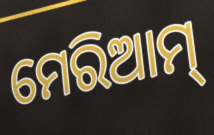
ମେରିଆମ୍